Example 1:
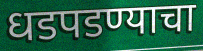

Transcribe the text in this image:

धडपडण्याचा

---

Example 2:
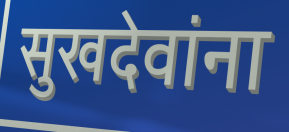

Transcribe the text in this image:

सुखदेवांना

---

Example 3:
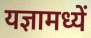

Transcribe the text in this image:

यज्ञामध्यें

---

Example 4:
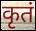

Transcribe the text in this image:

कृतं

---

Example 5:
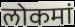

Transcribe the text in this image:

लोकमां